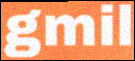
gmil